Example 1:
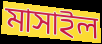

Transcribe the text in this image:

মাসাইল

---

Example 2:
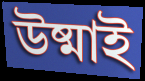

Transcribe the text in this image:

উষ্মাই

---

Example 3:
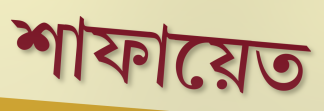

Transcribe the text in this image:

শাফায়েত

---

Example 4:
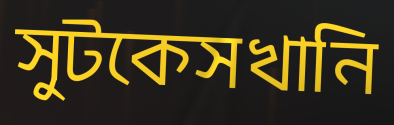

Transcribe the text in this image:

সুটকেসখানি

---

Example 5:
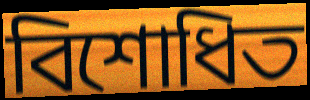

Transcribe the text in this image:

বিশোধিত